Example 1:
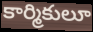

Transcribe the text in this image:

కార్మికులూ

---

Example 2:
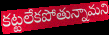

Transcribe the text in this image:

కట్టలేకపోతున్నామని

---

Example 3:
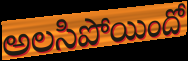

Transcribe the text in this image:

అలసిపోయిందో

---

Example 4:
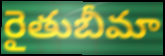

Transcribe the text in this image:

రైతుబీమా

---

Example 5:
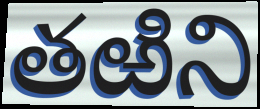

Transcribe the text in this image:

తఱిని